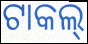
ଟାକଲ୍